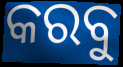
କରବୁ